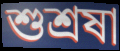
শুশ্রষা